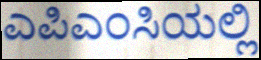
ಎಪಿಎಂಸಿಯಲ್ಲಿ